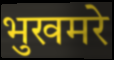
भुखमरे